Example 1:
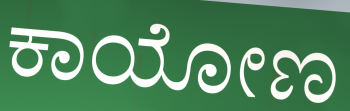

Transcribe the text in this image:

ಕಾಯೋಣ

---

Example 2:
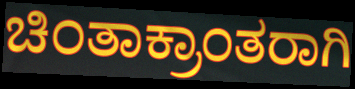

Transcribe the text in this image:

ಚಿಂತಾಕ್ರಾಂತರಾಗಿ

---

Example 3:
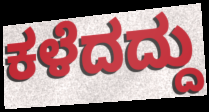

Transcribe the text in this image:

ಕಳೆದದ್ದು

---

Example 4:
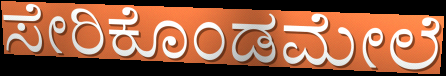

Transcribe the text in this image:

ಸೇರಿಕೊಂಡಮೇಲೆ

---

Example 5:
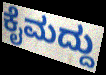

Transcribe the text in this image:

ಕೈಮದ್ದು